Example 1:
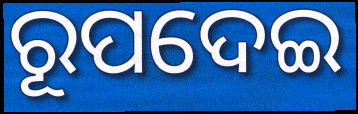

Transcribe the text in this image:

ରୂପଦେଇ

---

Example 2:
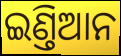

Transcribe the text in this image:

ଇଣ୍ତିଆନ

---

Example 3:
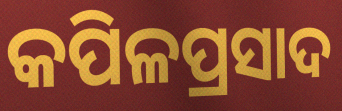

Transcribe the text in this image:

କପିଳପ୍ରସାଦ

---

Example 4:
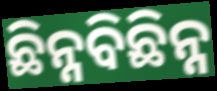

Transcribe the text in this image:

ଛିନ୍ନବିଛିନ୍ନ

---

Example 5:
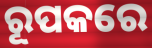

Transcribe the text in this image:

ରୂପକରେ